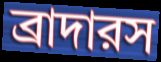
ব্রাদারস